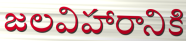
జలవిహారానికి